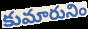
కుమారునిం